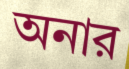
অনার